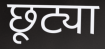
छूट्या